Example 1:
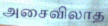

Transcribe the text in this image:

அசைவிலாத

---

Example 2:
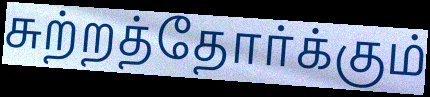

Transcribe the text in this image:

சுற்றத்தோர்க்கும்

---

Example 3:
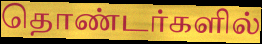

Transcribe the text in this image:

தொண்டர்களில்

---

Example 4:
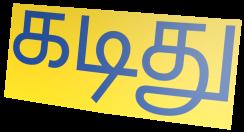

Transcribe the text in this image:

கடிது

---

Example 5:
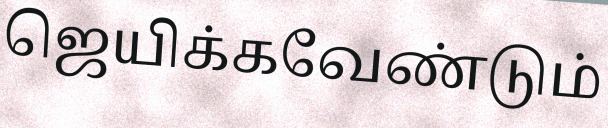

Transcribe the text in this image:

ஜெயிக்கவேண்டும்